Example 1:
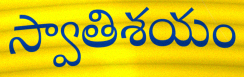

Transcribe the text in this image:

స్వాతిశయం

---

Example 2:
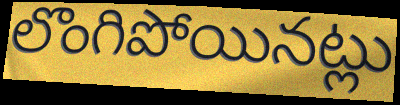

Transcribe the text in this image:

లొంగిపోయినట్లు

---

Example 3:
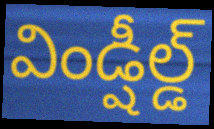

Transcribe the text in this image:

విండ్షీల్డ్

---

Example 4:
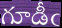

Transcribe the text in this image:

గూడీఁ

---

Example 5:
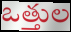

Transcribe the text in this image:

ఒత్తుల